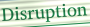
Disruption